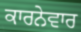
ਕਾਰਨੇਵਾਰ